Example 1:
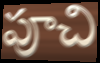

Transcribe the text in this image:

పూచి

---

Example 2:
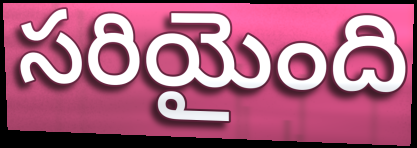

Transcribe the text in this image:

సరియైంది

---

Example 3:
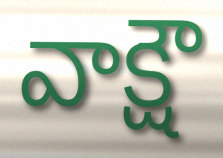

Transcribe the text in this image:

వాక్షౌ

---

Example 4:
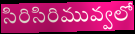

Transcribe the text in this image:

సిరిసిరిమువ్వలో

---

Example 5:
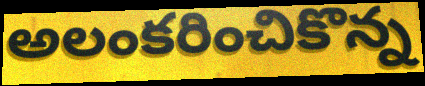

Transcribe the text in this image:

అలంకరించికొన్న